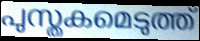
പുസ്തകമെടുത്ത്